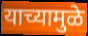
याच्यामुळे